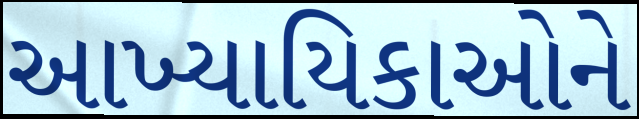
આખ્યાયિકાઓને